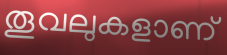
തൂവലുകളാണ്